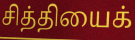
சித்தியைக்